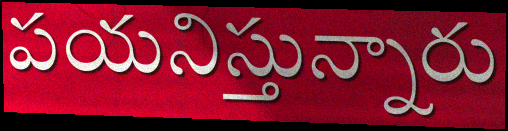
పయనిస్తున్నారు